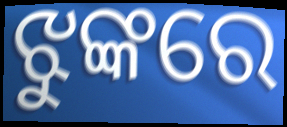
ଝୁଙ୍କରେ